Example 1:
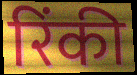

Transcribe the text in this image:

रिंकी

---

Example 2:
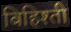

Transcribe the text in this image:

बिहिश्ती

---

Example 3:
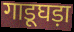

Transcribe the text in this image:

गाडूघड़ा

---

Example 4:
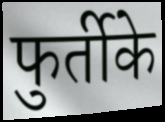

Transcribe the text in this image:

फुर्तीके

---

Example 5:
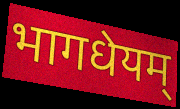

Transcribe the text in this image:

भागधेयम्